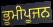
ਭੂਮੀਪੂਜਨ